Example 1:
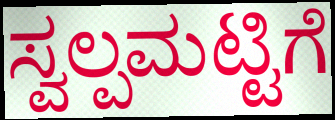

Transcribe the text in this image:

ಸ್ವಲ್ಪಮಟ್ಟಿಗೆ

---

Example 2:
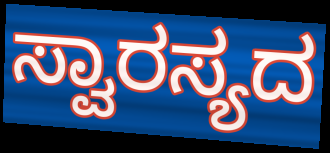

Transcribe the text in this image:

ಸ್ವಾರಸ್ಯದ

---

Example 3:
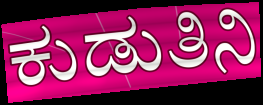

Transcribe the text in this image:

ಕುಡುತಿನಿ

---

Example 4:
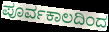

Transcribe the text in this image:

ಪೂರ್ವಕಾಲದಿಂದ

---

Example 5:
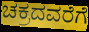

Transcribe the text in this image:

ಚಕ್ರದವರೆಗೆ